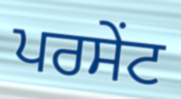
ਪਰਸੇੰਟ